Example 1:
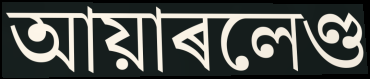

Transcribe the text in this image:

আয়াৰলেণ্ড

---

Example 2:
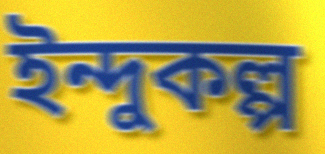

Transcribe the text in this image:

ইন্দুকল্প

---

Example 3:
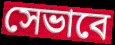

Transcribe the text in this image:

সেভাবে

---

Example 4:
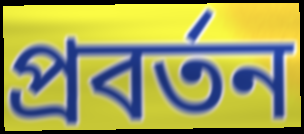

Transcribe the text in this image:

প্ৰবৰ্তন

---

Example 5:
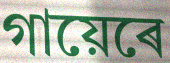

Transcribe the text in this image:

গায়েৰে